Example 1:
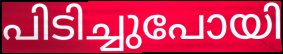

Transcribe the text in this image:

പിടിച്ചുപോയി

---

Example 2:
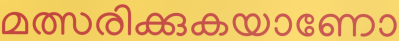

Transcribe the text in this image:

മത്സരിക്കുകയാണോ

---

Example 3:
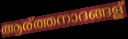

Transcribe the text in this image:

ആര്ത്തനാദങ്ങള്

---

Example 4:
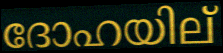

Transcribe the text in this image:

ദോഹയില്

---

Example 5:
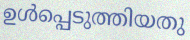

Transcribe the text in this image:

ഉൾപ്പെടുത്തിയതു